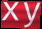
xy